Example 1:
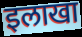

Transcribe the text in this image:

इलाखा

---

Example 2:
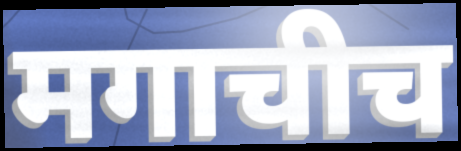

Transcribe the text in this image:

मगाचीच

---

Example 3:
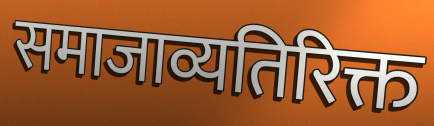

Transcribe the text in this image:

समाजाव्यतिरिक्त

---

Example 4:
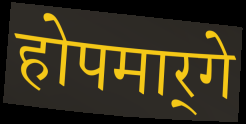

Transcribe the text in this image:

होपमार्गे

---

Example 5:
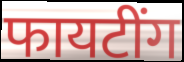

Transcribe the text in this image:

फायटींग